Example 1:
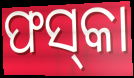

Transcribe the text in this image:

ଫସ୍‌କା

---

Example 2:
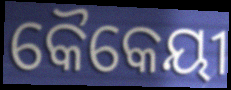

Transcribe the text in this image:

କୈକେୟୀ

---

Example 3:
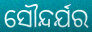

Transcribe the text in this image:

ସୌନ୍ଦର୍ଯର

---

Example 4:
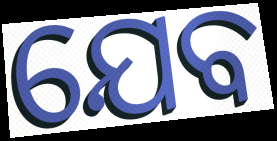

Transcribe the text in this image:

ଯେବ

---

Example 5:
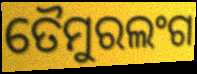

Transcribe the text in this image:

ତୈମୁରଲଂଗ